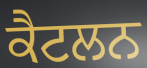
ਕੈਟਲਨ